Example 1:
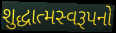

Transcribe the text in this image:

શુદ્ધાત્મસ્વરૂપનો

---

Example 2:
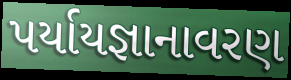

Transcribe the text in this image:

પર્યાયજ્ઞાનાવરણ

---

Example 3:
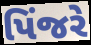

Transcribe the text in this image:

પિંજરે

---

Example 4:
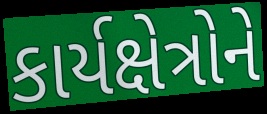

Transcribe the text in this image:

કાર્યક્ષેત્રોને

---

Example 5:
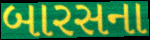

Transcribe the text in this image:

બારસના